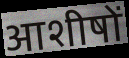
आशीषों